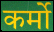
कर्मो